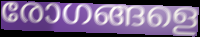
രോഗങ്ങളെ